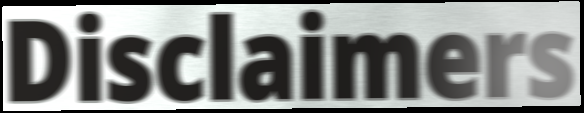
Disclaimers